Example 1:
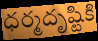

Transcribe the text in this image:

ధర్మదృష్టికి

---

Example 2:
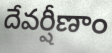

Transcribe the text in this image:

దేవర్షీణాం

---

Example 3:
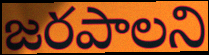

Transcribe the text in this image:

జరపాలని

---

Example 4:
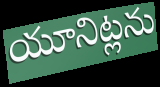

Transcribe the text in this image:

యూనిట్లను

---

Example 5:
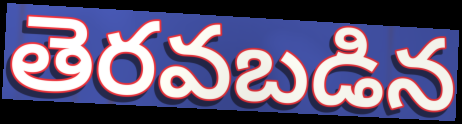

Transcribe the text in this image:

తెరవబడిన